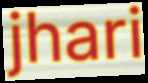
jhari